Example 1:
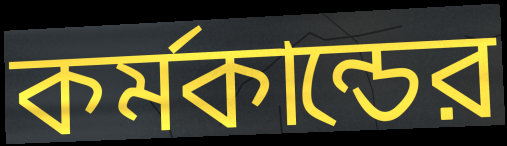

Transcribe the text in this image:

কর্মকান্ডের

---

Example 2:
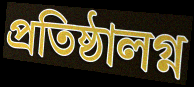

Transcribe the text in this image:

প্রতিষ্ঠালগ্ন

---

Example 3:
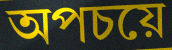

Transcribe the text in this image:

অপচয়ে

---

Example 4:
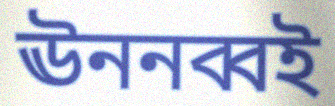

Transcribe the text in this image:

ঊননব্বই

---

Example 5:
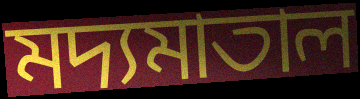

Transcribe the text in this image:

মদ্যমাতাল